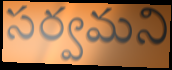
సర్వమని